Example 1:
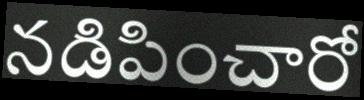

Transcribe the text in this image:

నడిపించారో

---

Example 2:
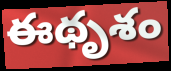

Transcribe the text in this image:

ఈథృశం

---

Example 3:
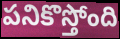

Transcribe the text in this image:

పనికొస్తోంది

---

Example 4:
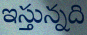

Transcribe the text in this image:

ఇస్తున్నది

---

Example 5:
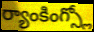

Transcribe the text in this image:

ర్యాంకింగ్స్లో